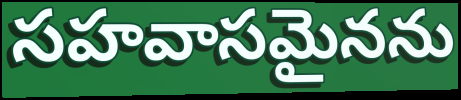
సహవాసమైనను